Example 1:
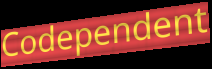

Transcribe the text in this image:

Codependent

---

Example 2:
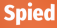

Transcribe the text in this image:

Spied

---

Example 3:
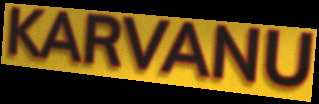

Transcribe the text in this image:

KARVANU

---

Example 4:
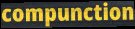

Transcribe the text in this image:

compunction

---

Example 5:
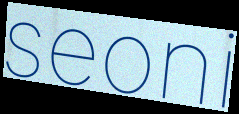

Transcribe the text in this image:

seoni